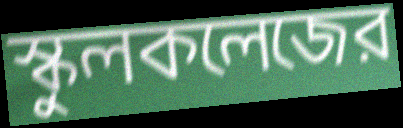
স্কুলকলেজের